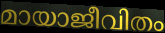
മായാജീവിതം